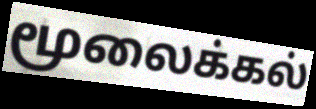
மூலைக்கல்